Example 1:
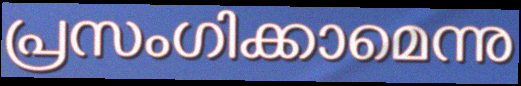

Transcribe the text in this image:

പ്രസംഗിക്കാമെന്നു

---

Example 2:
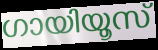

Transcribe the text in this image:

ഗായിയൂസ്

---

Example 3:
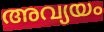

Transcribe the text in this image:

അവ്യയം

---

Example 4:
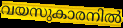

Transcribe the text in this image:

വയസുകാരനിൽ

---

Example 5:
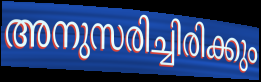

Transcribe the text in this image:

അനുസരിച്ചിരിക്കും